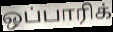
ஒப்பாரிக்